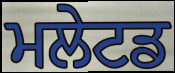
ਮਲੇਟਡ